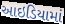
આઇડિયામાં